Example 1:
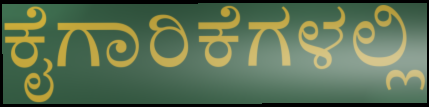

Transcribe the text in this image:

ಕೈಗಾರಿಕೆಗಳಲ್ಲಿ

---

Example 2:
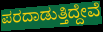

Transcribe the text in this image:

ಪರದಾಡುತ್ತಿದ್ದೇವೆ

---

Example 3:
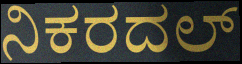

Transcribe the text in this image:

ನಿಕರದಲ್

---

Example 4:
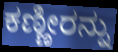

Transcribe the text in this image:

ಕಣ್ಣೀರನ್ನು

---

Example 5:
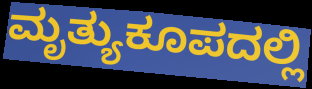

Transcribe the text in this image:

ಮೃತ್ಯುಕೂಪದಲ್ಲಿ